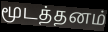
மூடத்தனம்